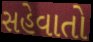
સહેવાતો